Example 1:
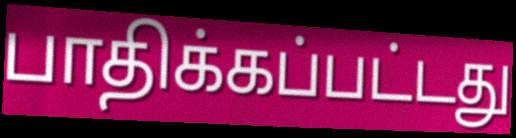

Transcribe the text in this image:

பாதிக்கப்பட்டது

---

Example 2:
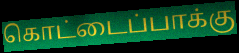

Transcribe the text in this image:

கொட்டைப்பாக்கு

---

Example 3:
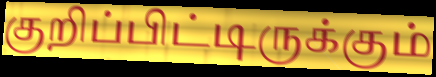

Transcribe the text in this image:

குறிப்பிட்டிருக்கும்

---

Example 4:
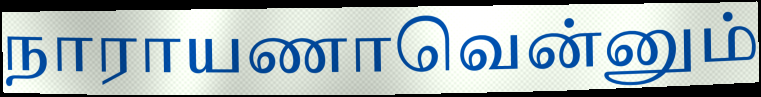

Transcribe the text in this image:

நாராயணாவென்னும்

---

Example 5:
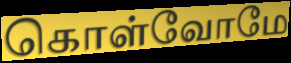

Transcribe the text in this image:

கொள்வோமே